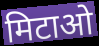
मिटाओ